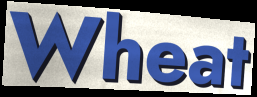
Wheat